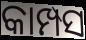
କାମ୍ପସ